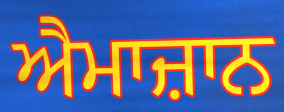
ਐਮਾਜ਼ਾਨ